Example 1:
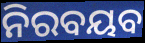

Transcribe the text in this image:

ନିରବୟବ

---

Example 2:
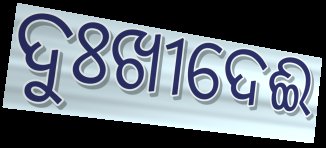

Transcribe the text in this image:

ଦୁଃଖୀଦେଈ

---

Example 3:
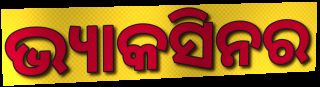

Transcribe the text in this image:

ଭ୍ୟାକସିନର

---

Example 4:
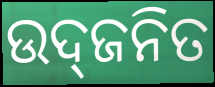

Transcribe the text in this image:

ଉଦ୍‌ଜନିତ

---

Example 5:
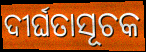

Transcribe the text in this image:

ଦୀର୍ଘତାସୂଚକ